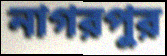
নাগরপুর